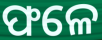
ଫଳେ